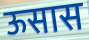
ऊसास